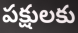
పక్షులకు